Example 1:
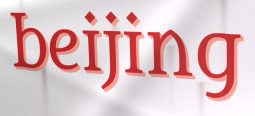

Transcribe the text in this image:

beijing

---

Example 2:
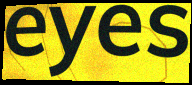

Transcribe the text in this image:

eyes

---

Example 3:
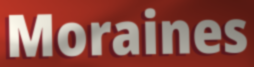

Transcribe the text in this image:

Moraines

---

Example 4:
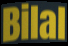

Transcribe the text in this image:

Bilal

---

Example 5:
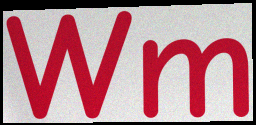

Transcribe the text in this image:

Wm